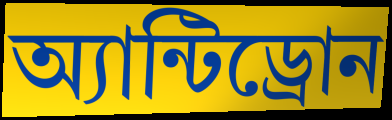
অ্যান্টিড্রোন